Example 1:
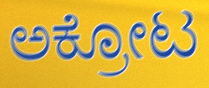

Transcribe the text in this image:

ಅಕ್ರೋಟ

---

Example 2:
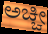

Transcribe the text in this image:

ಅಚ್ಚೀ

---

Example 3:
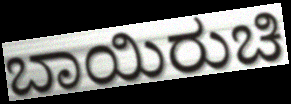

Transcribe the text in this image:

ಬಾಯಿರುಚಿ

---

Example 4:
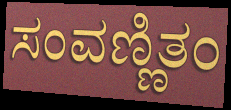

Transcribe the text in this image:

ಸಂವಣ್ಣಿತಂ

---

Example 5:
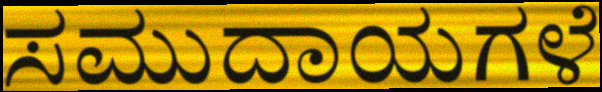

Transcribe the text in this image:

ಸಮುದಾಯಗಳೆ